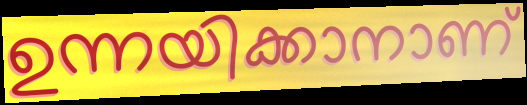
ഉന്നയിക്കാനാണ്